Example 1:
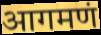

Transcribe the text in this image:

आगमणं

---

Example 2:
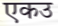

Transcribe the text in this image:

एकउ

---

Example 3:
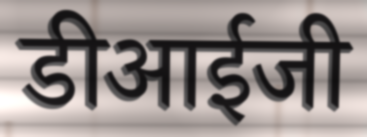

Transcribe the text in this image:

डीआईजी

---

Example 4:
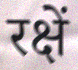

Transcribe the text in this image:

रक्षें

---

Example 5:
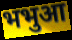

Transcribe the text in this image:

भभुआ